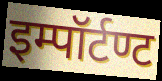
इम्पॉर्टण्ट